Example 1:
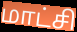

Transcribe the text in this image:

மாட்சி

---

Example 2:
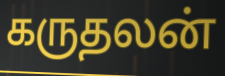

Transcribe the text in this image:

கருதலன்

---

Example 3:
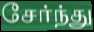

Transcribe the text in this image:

சேர்ந்து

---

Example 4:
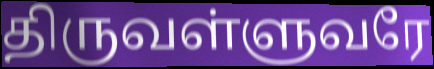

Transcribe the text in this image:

திருவள்ளுவரே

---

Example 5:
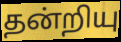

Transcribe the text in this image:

தன்றியு